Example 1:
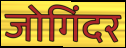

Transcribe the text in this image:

जोगिंदर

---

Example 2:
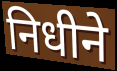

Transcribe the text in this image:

निधीने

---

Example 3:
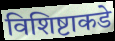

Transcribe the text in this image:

विशिष्टाकडे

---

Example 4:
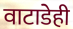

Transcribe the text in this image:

वाटाडेही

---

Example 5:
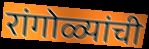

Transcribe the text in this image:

रांगोळ्यांची